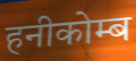
हनीकोम्ब